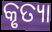
କୃତ୍ୟା